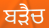
ਬੜੈਚ